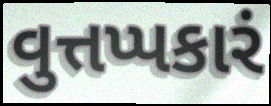
વુત્તપ્પકારં